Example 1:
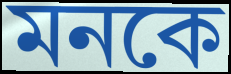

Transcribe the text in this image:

মনকে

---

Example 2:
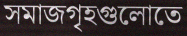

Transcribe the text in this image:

সমাজগৃহগুলোতে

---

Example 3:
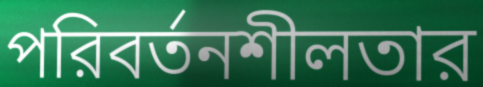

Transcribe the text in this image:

পরিবর্তনশীলতার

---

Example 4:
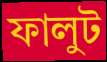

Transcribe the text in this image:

ফালুট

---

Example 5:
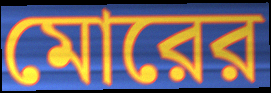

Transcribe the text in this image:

মোরের